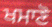
ਖਮਾਣੋ